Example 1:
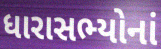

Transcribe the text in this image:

ધારાસભ્યોનાં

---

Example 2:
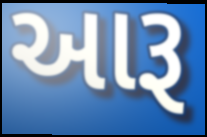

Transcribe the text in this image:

આરૂ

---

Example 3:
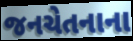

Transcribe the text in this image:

જનચેતનાના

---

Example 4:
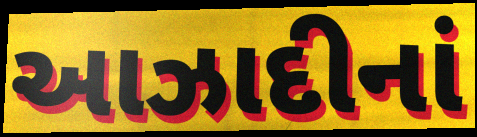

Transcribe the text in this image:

આઝાદીનાં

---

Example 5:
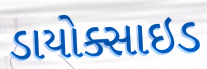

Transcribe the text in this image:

ડાયોક્સાઇડ